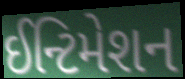
ઈન્ટિમેશન